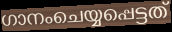
ഗാനംചെയ്യപ്പെട്ടത്